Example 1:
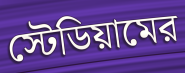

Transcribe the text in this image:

স্টেডিয়ামের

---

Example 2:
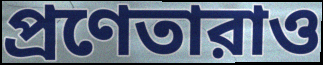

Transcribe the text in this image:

প্রণেতারাও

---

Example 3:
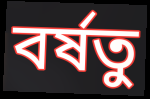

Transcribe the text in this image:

বর্ষতু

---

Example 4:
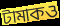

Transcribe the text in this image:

টামাকও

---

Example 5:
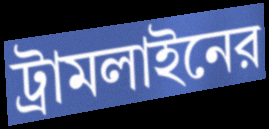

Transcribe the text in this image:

ট্রামলাইনের